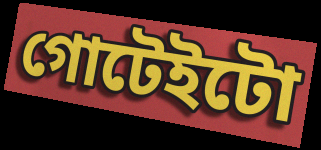
গোটেইটো